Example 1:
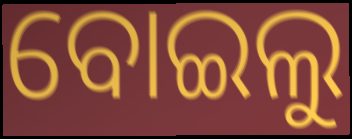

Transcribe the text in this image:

ବୋଇଲୁ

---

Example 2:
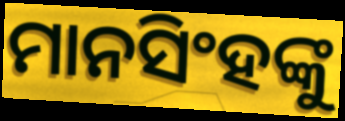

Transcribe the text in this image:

ମାନସିଂହଙ୍କୁ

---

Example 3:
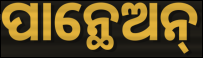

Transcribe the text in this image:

ପାନ୍ଥେଅନ୍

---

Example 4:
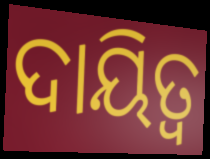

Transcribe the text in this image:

ଦାୟିତ୍ବ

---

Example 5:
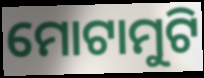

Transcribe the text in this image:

ମୋଟାମୁଟି